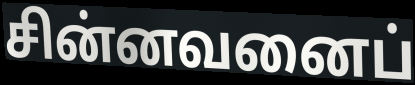
சின்னவனைப்